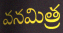
వనమిత్ర